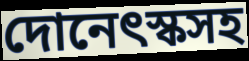
দোনেৎস্কসহ